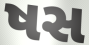
ષસ